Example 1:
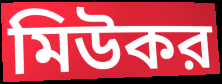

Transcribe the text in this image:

মিউকর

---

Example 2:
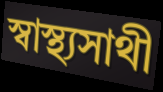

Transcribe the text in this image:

স্বাস্থ্যসাথী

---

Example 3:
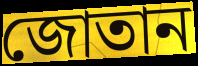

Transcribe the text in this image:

জোতান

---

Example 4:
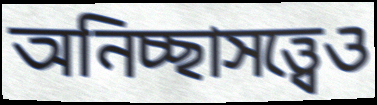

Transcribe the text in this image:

অনিচ্ছাসত্ত্বেও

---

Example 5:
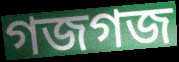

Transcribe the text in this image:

গজগজ